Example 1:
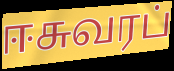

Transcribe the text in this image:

ஈசுவரப்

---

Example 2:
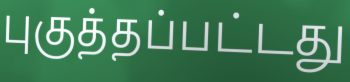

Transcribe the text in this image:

புகுத்தப்பட்டது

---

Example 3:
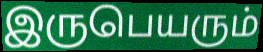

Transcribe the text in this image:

இருபெயரும்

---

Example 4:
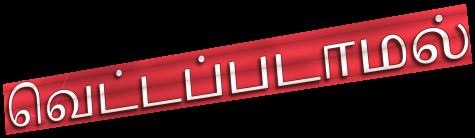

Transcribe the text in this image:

வெட்டப்படாமல்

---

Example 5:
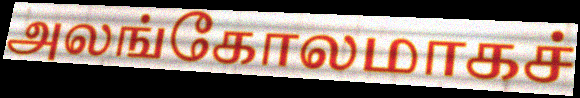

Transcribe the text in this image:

அலங்கோலமாகச்